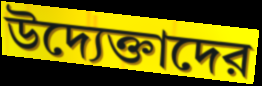
উদ্যেক্তাদের